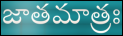
జాతమాత్రః